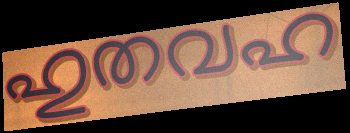
ഹുതവഹ